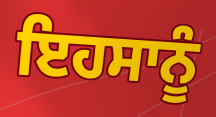
ਇਹਸਾਨੂੰ